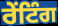
ਰੇਂਟਿੰਗ